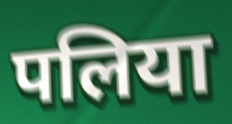
पलिया